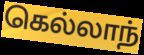
கெல்லாந்